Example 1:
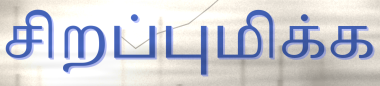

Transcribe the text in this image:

சிறப்புமிக்க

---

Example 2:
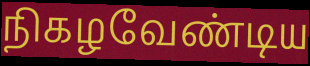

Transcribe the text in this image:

நிகழவேண்டிய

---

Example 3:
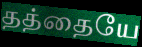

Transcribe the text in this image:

தத்தையே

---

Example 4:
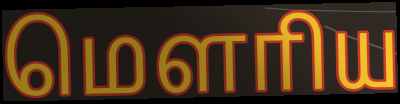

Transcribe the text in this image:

மௌரிய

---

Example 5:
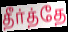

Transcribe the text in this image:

தீர்த்தே